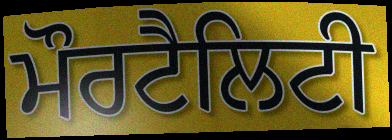
ਮੌਰਟੈਲਿਟੀ